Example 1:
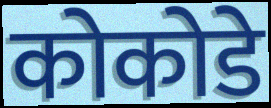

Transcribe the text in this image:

कोकोडे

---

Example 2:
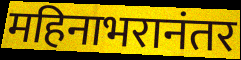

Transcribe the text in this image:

महिनाभरानंतर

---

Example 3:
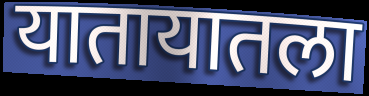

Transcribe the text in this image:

यातायातला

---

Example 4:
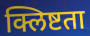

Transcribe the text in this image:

क्लिष्टता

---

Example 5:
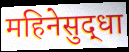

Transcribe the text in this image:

महिनेसुद्धा